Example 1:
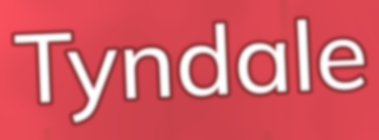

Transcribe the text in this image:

Tyndale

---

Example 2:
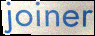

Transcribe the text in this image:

joiner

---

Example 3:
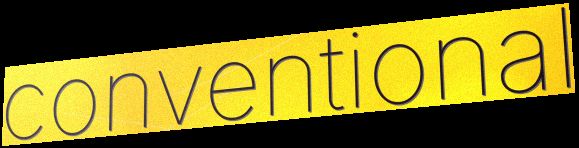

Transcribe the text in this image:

conventional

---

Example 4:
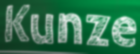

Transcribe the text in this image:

Kunze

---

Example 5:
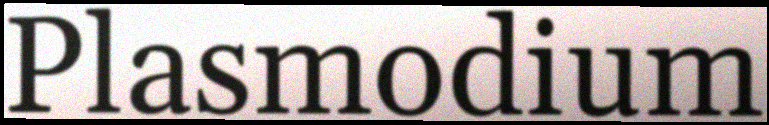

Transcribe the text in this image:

Plasmodium